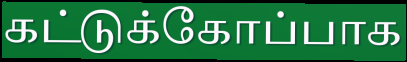
கட்டுக்கோப்பாக